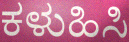
ಕಳುಹಿಸಿ